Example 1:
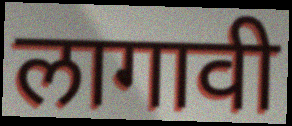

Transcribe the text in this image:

लागावी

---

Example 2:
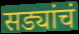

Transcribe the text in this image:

सड्यांचं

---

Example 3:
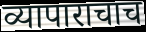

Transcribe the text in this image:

व्यापाराचाच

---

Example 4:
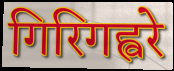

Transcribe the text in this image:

गिरिगह्वरे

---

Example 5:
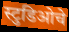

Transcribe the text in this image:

स्टुडिओचे